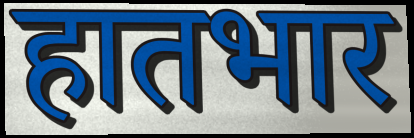
हातभार